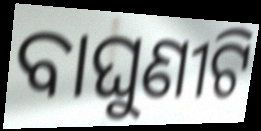
ବାଘୁଣୀଟି